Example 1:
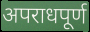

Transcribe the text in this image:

अपराधपूर्ण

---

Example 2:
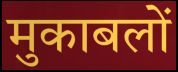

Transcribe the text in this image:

मुकाबलों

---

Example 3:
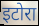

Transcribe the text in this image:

इटोरा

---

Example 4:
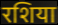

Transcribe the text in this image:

रशिया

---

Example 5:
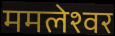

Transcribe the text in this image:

ममलेश्वर